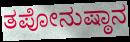
ತಪೋನುಷ್ಠಾನ